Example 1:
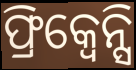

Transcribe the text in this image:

ଫ୍ରିକ୍ୱେନ୍ସି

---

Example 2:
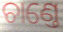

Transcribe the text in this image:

ଚାଣ୍ତେ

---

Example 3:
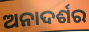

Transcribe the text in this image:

ଅନାଦର୍ଶର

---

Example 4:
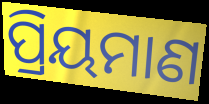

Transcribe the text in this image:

ପ୍ରିୟମାଣ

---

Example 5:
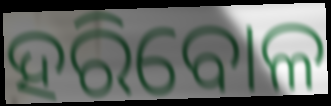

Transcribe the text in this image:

ହରିବୋଳ